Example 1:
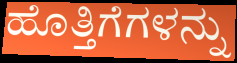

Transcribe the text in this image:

ಹೊತ್ತಿಗೆಗಳನ್ನು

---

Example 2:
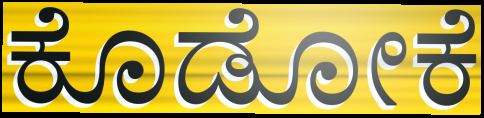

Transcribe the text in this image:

ಕೊಡೋಕೆ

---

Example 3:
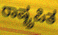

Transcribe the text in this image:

ರಾಷ್ಟ್ರಪಿತ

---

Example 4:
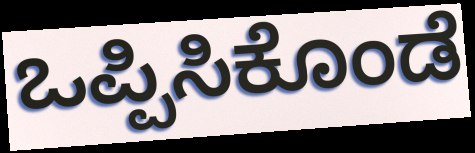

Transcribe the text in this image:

ಒಪ್ಪಿಸಿಕೊಂಡೆ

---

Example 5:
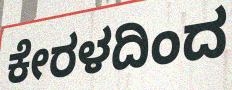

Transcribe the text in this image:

ಕೇರಳದಿಂದ